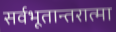
सर्वभूतान्तरात्मा